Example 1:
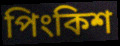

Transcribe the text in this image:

পিংকিশ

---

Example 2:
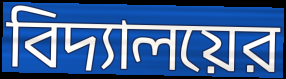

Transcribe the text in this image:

বিদ্যালয়ের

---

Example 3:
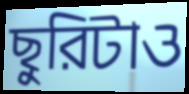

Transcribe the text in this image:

ছুরিটাও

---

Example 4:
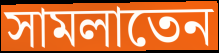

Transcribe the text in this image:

সামলাতেন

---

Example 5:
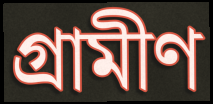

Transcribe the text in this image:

গ্রামীণ